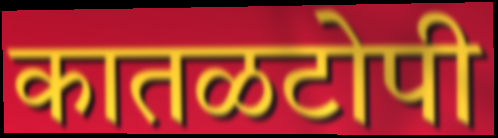
कातळटोपी